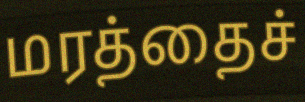
மரத்தைச்